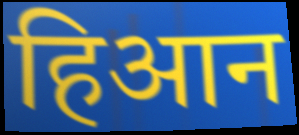
हिआन